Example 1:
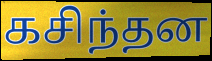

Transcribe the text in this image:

கசிந்தன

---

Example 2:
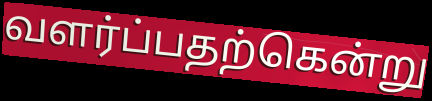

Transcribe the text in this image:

வளர்ப்பதற்கென்று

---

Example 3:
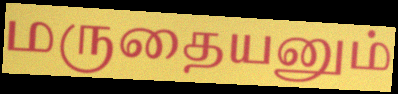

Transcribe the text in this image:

மருதையனும்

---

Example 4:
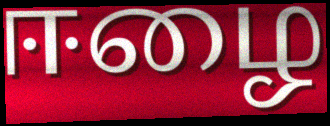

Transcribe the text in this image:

ஈழை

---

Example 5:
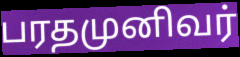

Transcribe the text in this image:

பரதமுனிவர்